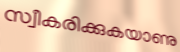
സ്വീകരിക്കുകയാണു